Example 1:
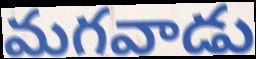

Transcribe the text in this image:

మగవాడు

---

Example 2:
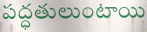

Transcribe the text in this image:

పద్ధతులుంటాయి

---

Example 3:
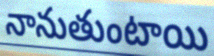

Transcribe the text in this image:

నానుతుంటాయి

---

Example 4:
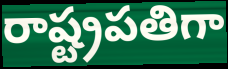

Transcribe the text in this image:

రాష్ట్రపతిగా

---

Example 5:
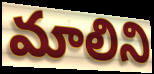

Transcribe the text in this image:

మాలిని